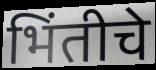
भिंतीचे